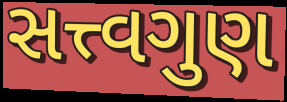
સત્ત્વગુણ